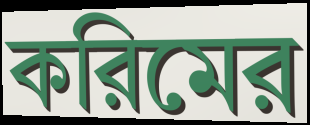
করিমের